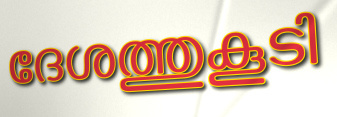
ദേശത്തുകൂടി